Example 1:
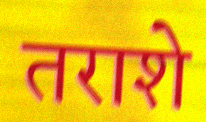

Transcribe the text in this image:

तराशे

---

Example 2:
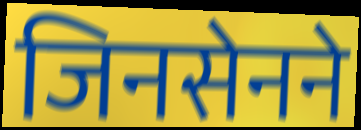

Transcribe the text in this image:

जिनसेनने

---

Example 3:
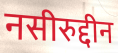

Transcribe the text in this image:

नसीरुद्दीन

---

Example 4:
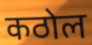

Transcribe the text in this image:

कठोल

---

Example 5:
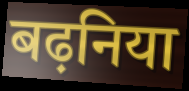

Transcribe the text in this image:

बढ़निया